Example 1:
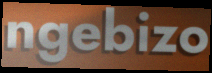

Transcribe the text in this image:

ngebizo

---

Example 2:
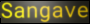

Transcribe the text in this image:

Sangave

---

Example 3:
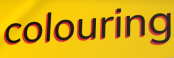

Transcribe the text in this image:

colouring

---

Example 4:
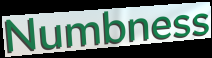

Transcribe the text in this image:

Numbness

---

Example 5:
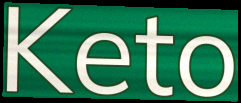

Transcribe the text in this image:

Keto